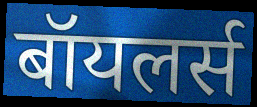
बॉयलर्स